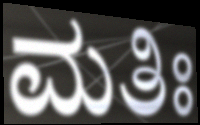
ಮತಿಃ